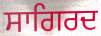
ਸਾਗਿਰਦ